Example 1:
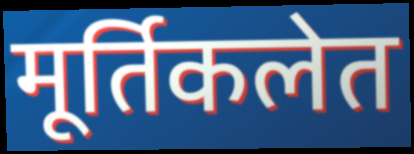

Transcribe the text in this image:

मूर्तिकलेत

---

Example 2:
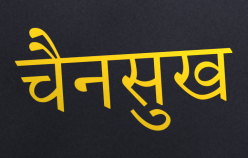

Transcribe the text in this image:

चैनसुख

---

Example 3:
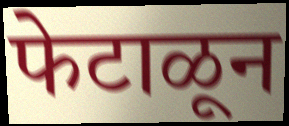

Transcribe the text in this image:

फेटाळून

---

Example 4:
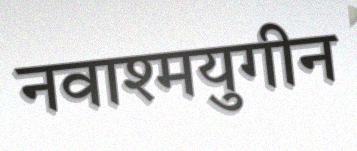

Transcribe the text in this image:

नवाश्मयुगीन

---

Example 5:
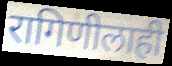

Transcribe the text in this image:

रागिणीलाही